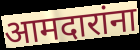
आमदारांना